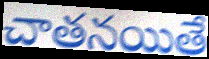
చాతనయితే